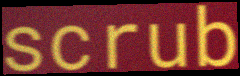
scrub